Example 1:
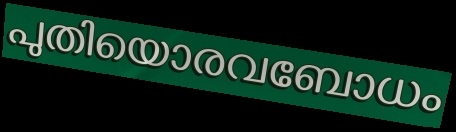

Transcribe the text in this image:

പുതിയൊരവബോധം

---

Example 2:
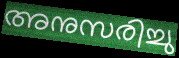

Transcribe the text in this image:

അനുസരിച്ചു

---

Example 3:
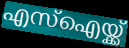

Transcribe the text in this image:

എസ്ഐയ്ക്ക്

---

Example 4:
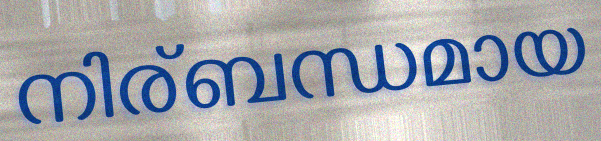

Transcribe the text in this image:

നിര്ബന്ധമായ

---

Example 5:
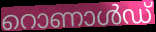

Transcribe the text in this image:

റൊണാൾഡ്